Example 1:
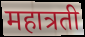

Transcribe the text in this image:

महात्रती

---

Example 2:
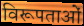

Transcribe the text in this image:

विरूपताओं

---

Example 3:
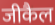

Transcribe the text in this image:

जीकैल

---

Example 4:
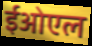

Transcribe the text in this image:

ईओएल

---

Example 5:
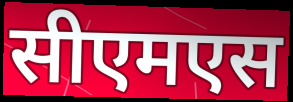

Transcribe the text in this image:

सीएमएस